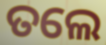
ତଲେ